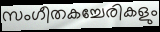
സംഗീതകച്ചേരികളും